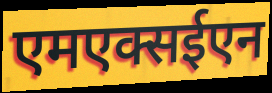
एमएक्सईएन